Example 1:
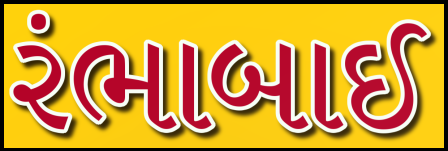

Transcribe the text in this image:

રંભાબાઈ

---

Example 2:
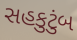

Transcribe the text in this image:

સહકુટુંબ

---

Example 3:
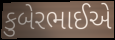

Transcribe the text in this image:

કુબેરભાઈએ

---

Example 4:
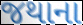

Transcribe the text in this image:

જથાના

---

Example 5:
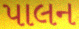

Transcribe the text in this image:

પાલન